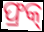
ଫ୍ରକ୍